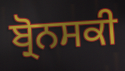
ਬ੍ਰੋਨਸਕੀ